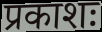
प्रकाशः